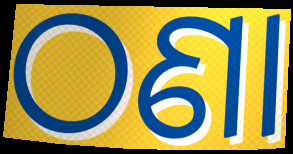
ଠଣା